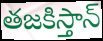
తజకిస్తాన్